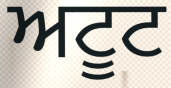
ਅਟੂਟ